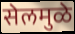
सेलमुळे